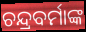
ଚନ୍ଦ୍ରବର୍ମାଙ୍କ